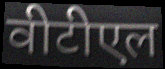
वीटीएल